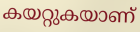
കയറ്റുകയാണ്